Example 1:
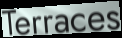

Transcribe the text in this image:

Terraces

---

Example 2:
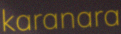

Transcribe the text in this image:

karanara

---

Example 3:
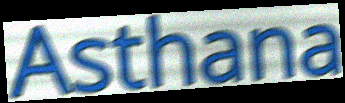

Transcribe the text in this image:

Asthana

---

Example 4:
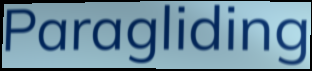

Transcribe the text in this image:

Paragliding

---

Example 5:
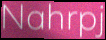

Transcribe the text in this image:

Nahrpj